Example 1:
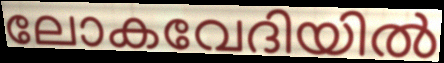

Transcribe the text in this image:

ലോകവേദിയിൽ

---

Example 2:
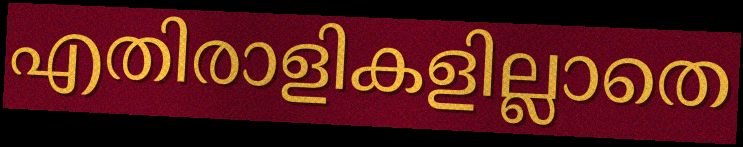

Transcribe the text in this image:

എതിരാളികളില്ലാതെ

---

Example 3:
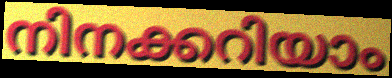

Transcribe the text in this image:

നിനക്കറിയാം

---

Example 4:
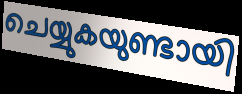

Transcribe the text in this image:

ചെയ്യുകയുണ്ടായി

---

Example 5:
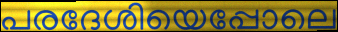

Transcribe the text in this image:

പരദേശിയെപ്പോലെ